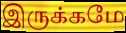
இருக்கமே